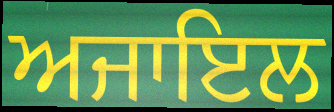
ਅਜਾਇਲ